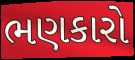
ભણકારો